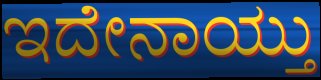
ಇದೇನಾಯ್ತು